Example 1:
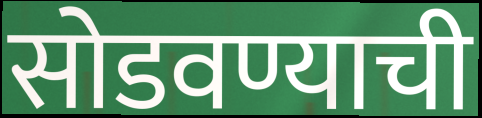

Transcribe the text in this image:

सोडवण्याची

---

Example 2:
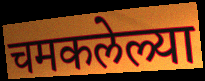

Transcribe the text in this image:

चमकलेल्या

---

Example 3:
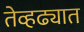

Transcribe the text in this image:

तेव्हढ्यात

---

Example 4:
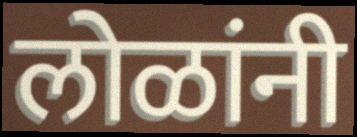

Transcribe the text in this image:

लोळांनी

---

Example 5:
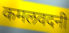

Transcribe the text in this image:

कमलवदनी